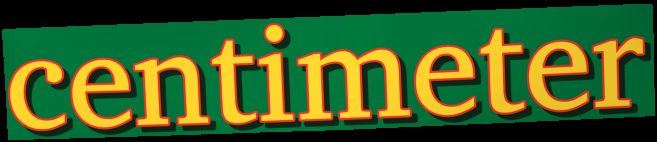
centimeter